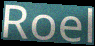
Roel